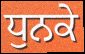
ਧੁਨਕੇ